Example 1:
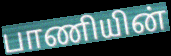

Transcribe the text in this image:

பாணியின்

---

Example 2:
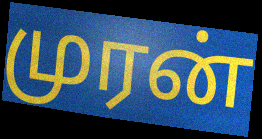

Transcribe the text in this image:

முரன்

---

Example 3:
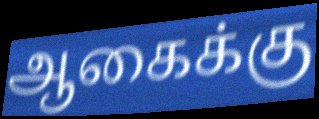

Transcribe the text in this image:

ஆகைக்கு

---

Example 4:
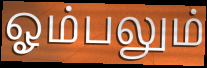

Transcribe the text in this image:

ஓம்பலும்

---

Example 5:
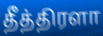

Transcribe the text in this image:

தீத்திரளா